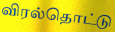
விரல்தொட்டு